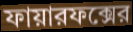
ফায়ারফক্সের